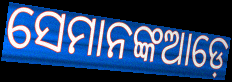
ସେମାନଙ୍କଆଡ଼େ